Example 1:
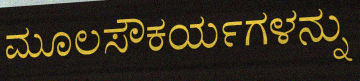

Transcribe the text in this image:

ಮೂಲಸೌಕರ್ಯಗಳನ್ನು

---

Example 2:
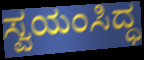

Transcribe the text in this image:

ಸ್ವಯಂಸಿದ್ಧ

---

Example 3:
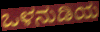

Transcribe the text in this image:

ಒಳನುಡಿಯ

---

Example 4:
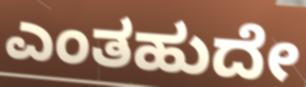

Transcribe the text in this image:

ಎಂತಹುದೇ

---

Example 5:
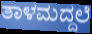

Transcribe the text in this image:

ತಾಳಮದ್ದಲೆ